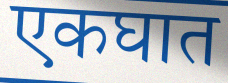
एकघात